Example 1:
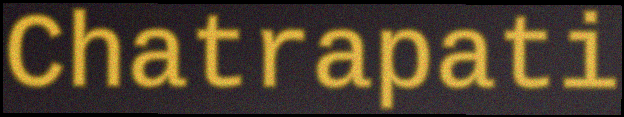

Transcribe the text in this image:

Chatrapati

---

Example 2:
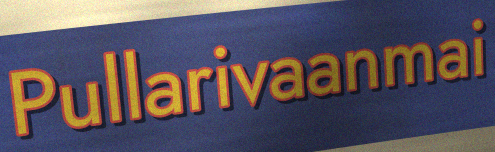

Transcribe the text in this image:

Pullarivaanmai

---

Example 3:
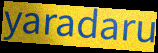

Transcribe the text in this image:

yaradaru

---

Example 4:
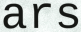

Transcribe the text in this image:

ars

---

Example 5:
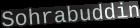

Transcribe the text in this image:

Sohrabuddin